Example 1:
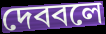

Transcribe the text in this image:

দেববলে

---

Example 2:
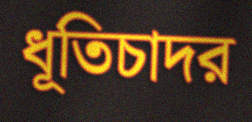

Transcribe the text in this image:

ধূতিচাদর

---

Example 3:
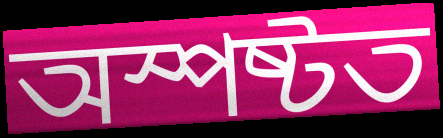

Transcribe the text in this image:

অস্পষ্টত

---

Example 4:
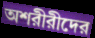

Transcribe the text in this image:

অশরীরীদের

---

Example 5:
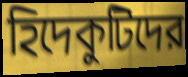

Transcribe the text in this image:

হিদেকুটিদের